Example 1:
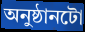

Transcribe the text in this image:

অনুষ্ঠানটো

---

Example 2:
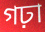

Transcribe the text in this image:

গঢ়া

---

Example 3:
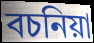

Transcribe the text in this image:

বচনিয়া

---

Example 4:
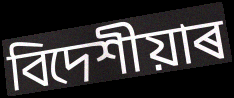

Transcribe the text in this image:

বিদেশীয়াৰ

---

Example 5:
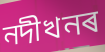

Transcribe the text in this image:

নদীখনৰ